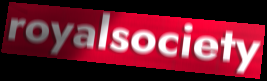
royalsociety